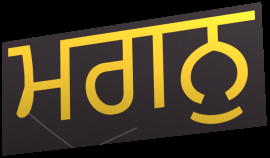
ਮਗਨੁ